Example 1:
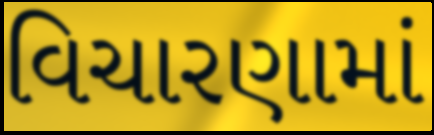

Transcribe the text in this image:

વિચારણામાં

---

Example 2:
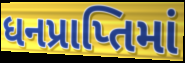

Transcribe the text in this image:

ધનપ્રાપ્તિમાં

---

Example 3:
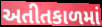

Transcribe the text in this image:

અતીતકાળમાં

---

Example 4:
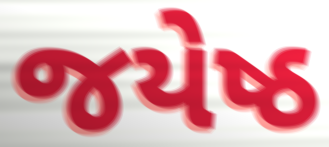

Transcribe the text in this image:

જયેષ્ઠ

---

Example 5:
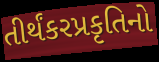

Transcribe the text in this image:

તીર્થંકરપ્રકૃતિનો